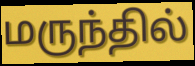
மருந்தில்